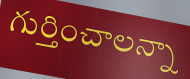
గుర్తించాలన్నా